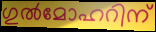
ഗുൽമോഹറിന്